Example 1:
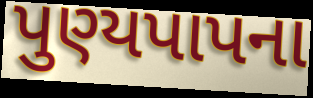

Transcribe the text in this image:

પુણ્યપાપના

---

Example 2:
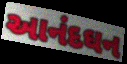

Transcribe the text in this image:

આનંદઘન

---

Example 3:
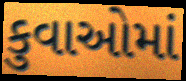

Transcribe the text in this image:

કુવાઓમાં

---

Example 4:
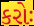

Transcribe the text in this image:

કરોઃ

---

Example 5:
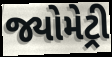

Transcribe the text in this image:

જ્યોમેટ્રી